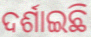
ଦର୍ଶାଇଛି